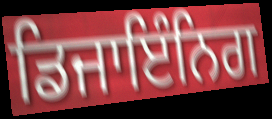
ਡਿਜਾਇੰਨਿਗ